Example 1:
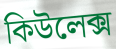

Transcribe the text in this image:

কিউলেক্স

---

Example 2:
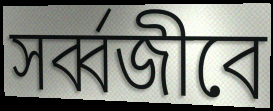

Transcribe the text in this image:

সর্ব্বজীবে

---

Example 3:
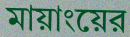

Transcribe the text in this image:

মায়াংয়ের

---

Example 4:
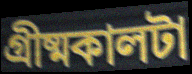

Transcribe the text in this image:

গ্রীষ্মকালটা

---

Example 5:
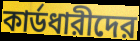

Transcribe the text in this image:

কার্ডধারীদের